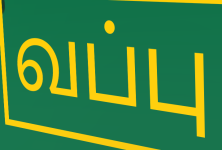
வப்பு